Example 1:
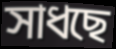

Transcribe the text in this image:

সাধছে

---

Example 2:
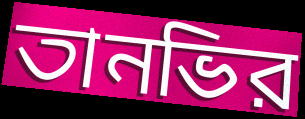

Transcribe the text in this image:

তানভির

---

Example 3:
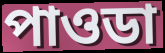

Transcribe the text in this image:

পাওডা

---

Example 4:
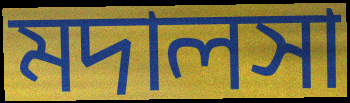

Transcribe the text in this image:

মদালসা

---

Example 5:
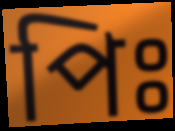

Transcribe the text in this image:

পিঃ